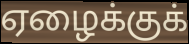
ஏழைக்குக்